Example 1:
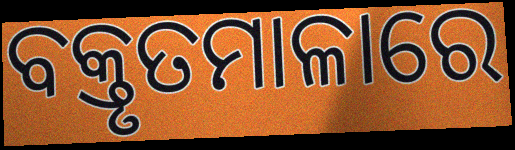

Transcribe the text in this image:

ବକ୍ତୃତମାଳାରେ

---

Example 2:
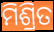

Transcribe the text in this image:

ମିଶ୍ରିତ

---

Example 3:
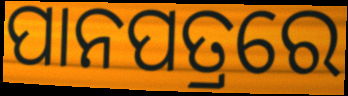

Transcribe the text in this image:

ପାନପତ୍ରରେ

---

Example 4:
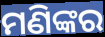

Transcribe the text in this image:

ମଣିଙ୍କର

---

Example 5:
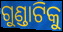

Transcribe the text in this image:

ଗୁଣ୍ଡାଟିକୁ